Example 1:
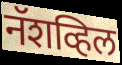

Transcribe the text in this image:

नॅशव्हिल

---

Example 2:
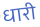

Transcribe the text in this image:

धारी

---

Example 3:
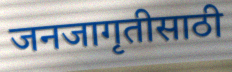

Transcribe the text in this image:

जनजागृतीसाठी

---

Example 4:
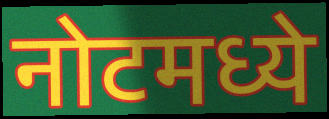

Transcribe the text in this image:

नोटमध्ये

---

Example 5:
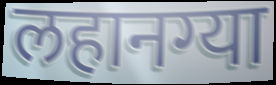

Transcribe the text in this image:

लहानग्या